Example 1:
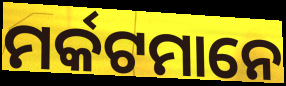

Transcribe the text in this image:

ମର୍କଟମାନେ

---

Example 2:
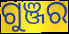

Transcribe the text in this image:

ଗୁଞ୍ଜର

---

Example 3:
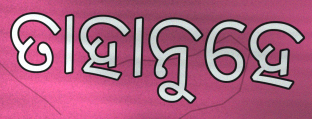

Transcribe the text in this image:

ତାହାନୁହେ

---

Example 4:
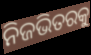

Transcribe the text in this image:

ନିଜଭିତରକୁ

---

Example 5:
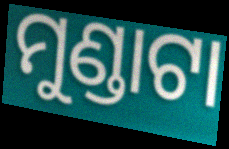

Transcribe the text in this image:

ମୁଣ୍ଡାଟା